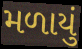
મળાયું